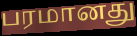
பரமானது